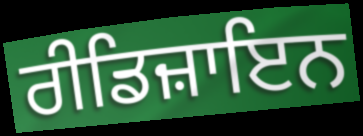
ਰੀਡਿਜ਼ਾਇਨ